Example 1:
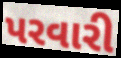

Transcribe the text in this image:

પરવારી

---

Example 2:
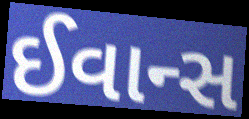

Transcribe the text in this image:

ઈવાન્સ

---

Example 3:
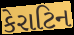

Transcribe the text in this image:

કેરાટિન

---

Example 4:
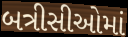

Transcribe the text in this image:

બત્રીસીઓમાં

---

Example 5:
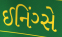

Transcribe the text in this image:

ઈનિંગ્સે